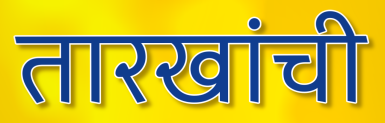
तारखांची